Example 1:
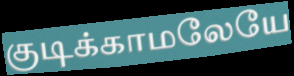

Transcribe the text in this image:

குடிக்காமலேயே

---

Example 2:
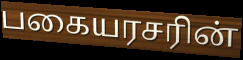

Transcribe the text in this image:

பகையரசரின்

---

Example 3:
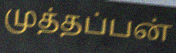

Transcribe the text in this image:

முத்தப்பன்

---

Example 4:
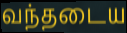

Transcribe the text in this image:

வந்தடைய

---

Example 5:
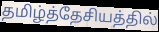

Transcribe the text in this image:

தமிழ்த்தேசியத்தில்